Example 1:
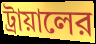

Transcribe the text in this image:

ট্রায়ালের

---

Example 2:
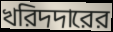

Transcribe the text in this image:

খরিদদারের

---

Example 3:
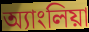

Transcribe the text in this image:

অ্যাংলিয়া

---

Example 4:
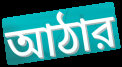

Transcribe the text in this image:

আঠার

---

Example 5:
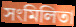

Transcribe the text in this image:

সংমিলিতা